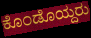
ಕೊಂಡೊಯ್ದರು